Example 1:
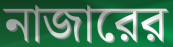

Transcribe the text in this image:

নাজারের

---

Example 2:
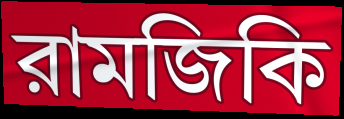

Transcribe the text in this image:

রামজিকি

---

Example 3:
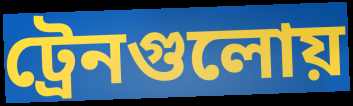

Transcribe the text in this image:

ট্রেনগুলোয়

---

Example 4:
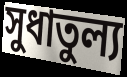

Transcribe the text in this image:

সুধাতুল্য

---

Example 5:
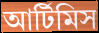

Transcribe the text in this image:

আর্টিমিস